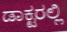
ಡಾಕ್ಟರಲ್ಲಿ